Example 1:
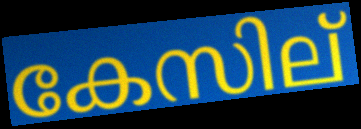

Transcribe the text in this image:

കേസില്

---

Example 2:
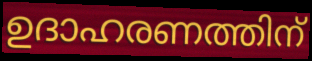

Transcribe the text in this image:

ഉദാഹരണത്തിന്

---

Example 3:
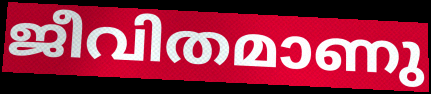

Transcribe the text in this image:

ജീവിതമാണു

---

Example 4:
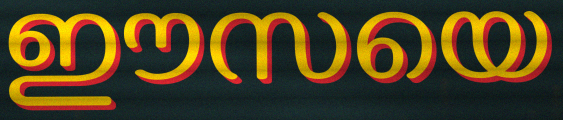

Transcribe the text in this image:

ഈസയെ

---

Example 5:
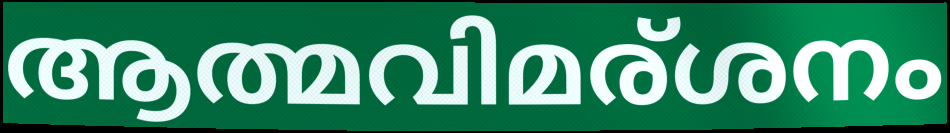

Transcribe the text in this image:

ആത്മവിമര്ശനം